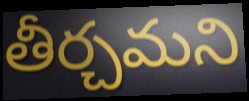
తీర్చమని